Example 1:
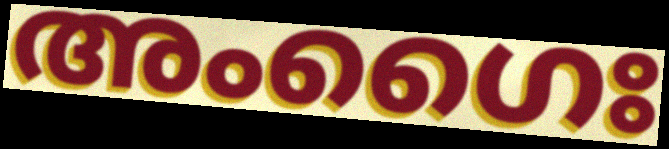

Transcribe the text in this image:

അംഗൈഃ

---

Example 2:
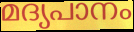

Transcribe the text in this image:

മദ്യപാനം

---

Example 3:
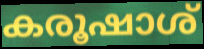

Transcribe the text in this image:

കരൂഷാശ്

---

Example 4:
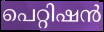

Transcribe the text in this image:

പെറ്റിഷൻ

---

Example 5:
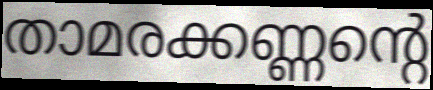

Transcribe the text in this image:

താമരക്കണ്ണന്റെ